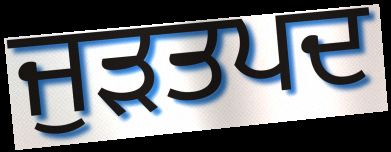
ਜੁੜਤਪਦ